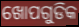
ଖୋପଗୁଡିକ